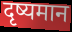
दृष्यमान